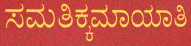
ಸಮತಿಕ್ಕಮಾಯಾತಿ